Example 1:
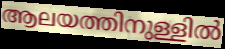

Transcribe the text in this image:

ആലയത്തിനുള്ളിൽ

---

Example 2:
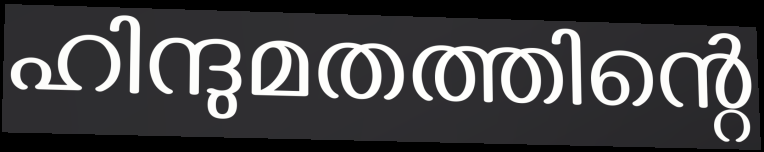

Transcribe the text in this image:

ഹിന്ദുമതത്തിന്റെ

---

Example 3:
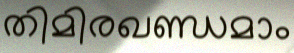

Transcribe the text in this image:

തിമിരഖണ്ഡമാം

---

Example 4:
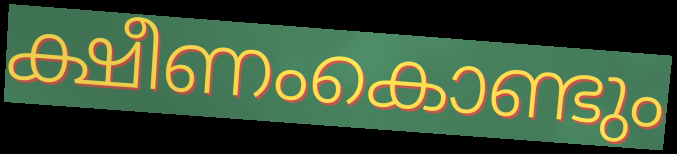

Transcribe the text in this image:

ക്ഷീണംകൊണ്ടും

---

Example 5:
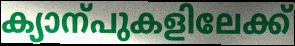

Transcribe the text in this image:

ക്യാന്പുകളിലേക്ക്